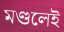
মণ্ডলেই